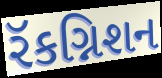
રૅકગ્નિશન